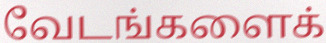
வேடங்களைக்